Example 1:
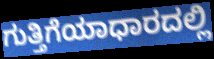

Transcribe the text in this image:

ಗುತ್ತಿಗೆಯಾಧಾರದಲ್ಲಿ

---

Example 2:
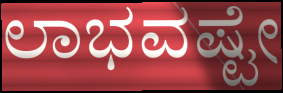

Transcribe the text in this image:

ಲಾಭವಷ್ಟೇ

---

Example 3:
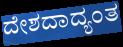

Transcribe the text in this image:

ದೇಶದಾದ್ಯಂತ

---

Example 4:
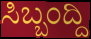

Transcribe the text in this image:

ಸಿಬ್ಬಂದ್ದಿ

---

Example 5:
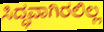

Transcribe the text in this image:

ಸಿದ್ಧವಾಗಿರಲಿಲ್ಲ